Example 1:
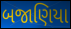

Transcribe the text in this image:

બજાણિયા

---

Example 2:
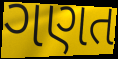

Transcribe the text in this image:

ગણત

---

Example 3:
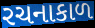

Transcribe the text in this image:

રચનાકાળ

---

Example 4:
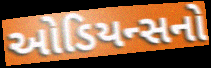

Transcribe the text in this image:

ઓડિયન્સનો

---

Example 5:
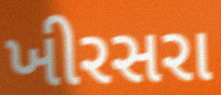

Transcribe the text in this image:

ખીરસરા